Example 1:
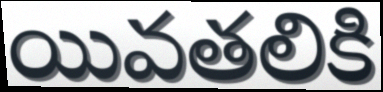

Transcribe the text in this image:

యివతలికి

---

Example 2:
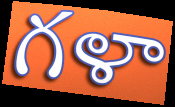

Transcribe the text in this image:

గళా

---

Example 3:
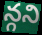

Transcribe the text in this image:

న్గని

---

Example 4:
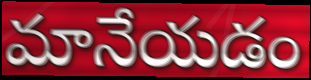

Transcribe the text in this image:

మానేయడం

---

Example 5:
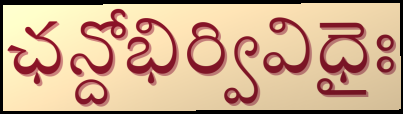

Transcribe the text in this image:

ఛన్దోభిర్వివిధైః